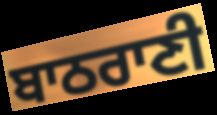
ਬਾਠਰਾਣੀ